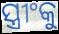
ସ୍ତ୍ରୀଂକୁ